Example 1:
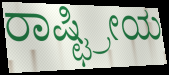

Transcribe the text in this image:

ರಾಷ್ಟ್ರೀಯ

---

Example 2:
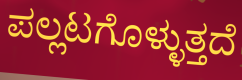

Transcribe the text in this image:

ಪಲ್ಲಟಗೊಳ್ಳುತ್ತದೆ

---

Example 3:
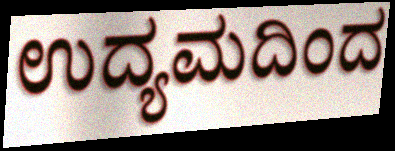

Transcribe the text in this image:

ಉದ್ಯಮದಿಂದ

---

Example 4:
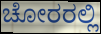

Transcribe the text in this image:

ಚೋರರಲ್ಲಿ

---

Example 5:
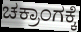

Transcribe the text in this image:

ಚಕ್ರಾಂಗಕ್ಕೆ